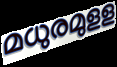
മധുരമുളള